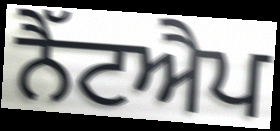
ਨੈੱਟਐਪ